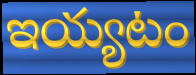
ఇయ్యటం